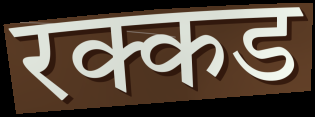
रक्कड